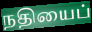
நதியைப்